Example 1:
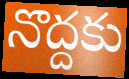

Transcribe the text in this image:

నొద్దకు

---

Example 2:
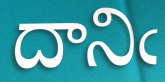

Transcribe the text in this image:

దానిఁ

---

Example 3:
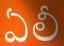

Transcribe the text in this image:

ఏలీ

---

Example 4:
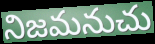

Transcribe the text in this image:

నిజమనుచు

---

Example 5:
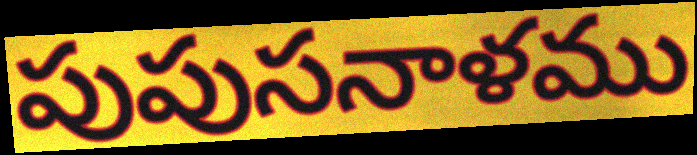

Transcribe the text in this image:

పుపుసనాళము